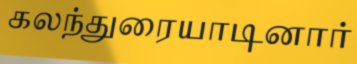
கலந்துரையாடினார்